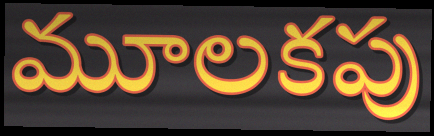
మూలకపు